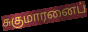
சுகுமாரனைப்